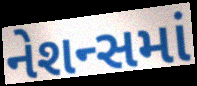
નેશન્સમાં